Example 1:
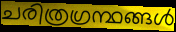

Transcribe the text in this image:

ചരിത്രഗ്രന്ഥങ്ങൾ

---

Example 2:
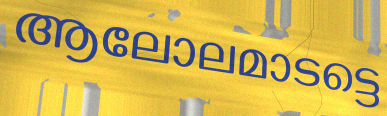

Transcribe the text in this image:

ആലോലമാടട്ടെ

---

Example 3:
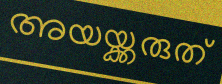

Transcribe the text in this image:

അയയ്ക്കരുത്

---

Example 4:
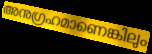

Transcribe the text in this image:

അനുഗ്രഹമാണെങ്കിലും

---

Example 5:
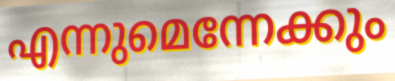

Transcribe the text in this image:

എന്നുമെന്നേക്കും